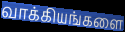
வாக்கியங்களை